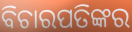
ବିଚାରପତିଙ୍କର